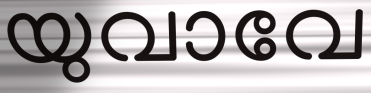
യുവാവേ